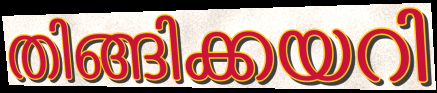
തിങ്ങിക്കയറി